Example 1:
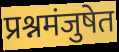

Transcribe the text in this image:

प्रश्नमंजुषेत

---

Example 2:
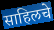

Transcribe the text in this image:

साहिलचे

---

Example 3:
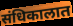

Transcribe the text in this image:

संधिकालात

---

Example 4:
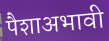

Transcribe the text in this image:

पैशाअभावी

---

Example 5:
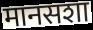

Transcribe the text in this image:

मानसशा